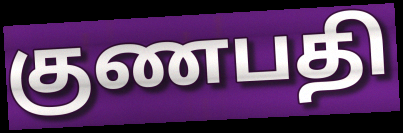
குணபதி